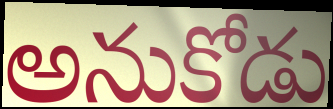
అనుకోడు